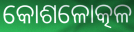
କୋଶଳୋତ୍କଳ